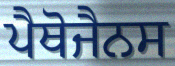
ਪੈਥੋਜੈਨਸ